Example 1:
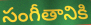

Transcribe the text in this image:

సంగీతానికి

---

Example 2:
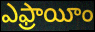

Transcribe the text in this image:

ఎఫ్రాయీం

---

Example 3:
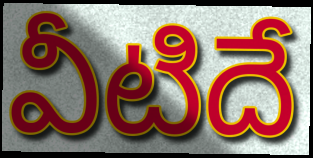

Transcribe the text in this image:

వీటిదే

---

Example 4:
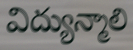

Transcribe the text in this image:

విద్యున్మాలి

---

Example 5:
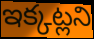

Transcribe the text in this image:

ఇక్కట్లని